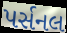
પર્સનલ